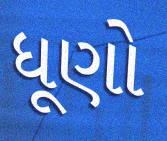
ધૂણો